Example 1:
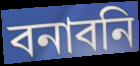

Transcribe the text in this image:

বনাবনি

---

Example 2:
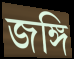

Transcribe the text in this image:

জঙ্গি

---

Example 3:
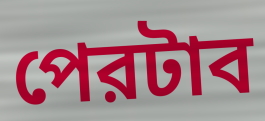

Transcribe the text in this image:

পেরটাব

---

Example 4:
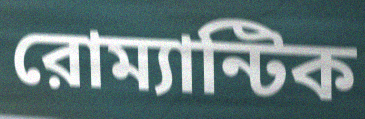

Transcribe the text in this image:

রোম্যান্টিক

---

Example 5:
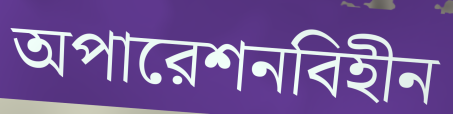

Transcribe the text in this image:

অপারেশনবিহীন